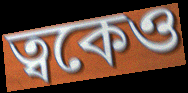
ত্বকেও